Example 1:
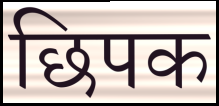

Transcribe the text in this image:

छिपक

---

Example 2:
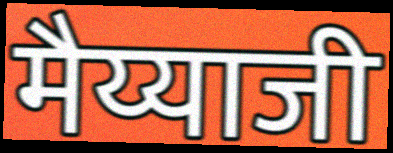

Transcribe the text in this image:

मैय्याजी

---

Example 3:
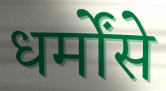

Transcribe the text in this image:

धर्मोंसे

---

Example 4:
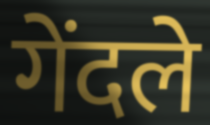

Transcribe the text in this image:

गेंदले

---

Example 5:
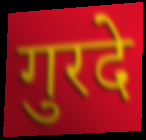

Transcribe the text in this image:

गुरदे